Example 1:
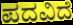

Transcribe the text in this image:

ಪದವಿದೆ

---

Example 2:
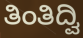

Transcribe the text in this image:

ತಿಂತಿದ್ವಿ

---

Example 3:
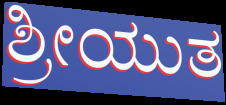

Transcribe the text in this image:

ಶ್ರೀಯುತ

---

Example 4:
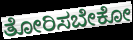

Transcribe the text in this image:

ತೋರಿಸಬೇಕೋ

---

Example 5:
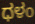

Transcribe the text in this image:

ಧಳಂ